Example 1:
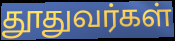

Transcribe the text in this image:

தூதுவர்கள்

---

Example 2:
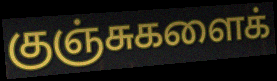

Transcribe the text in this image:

குஞ்சுகளைக்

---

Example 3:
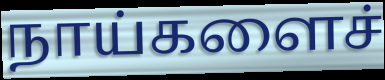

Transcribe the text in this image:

நாய்களைச்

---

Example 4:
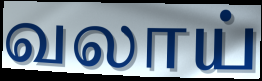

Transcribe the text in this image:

வலாய்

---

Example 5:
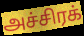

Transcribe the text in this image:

அச்சிரக்